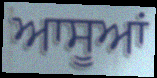
ਆਸੂਆਂ